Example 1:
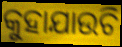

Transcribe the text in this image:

କୁହାଯାଉଚି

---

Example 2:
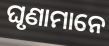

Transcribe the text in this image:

ଘୃଣାମାନେ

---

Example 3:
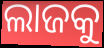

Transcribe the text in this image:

ଲାଜକୁ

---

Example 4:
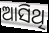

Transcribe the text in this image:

ଆସିଥି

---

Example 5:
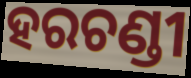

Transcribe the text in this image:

ହରଚଣ୍ଡୀ